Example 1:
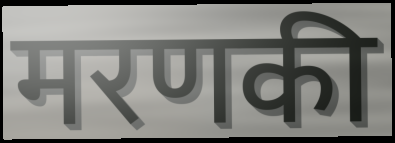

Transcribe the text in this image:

मरणकी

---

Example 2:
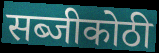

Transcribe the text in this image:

सब्जीकोठी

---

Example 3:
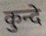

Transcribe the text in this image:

कुन्दे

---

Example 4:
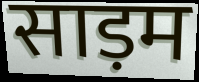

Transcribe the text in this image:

साड़म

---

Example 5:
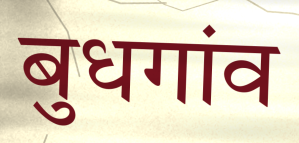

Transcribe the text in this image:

बुधगांव